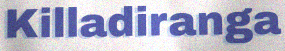
Killadiranga